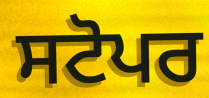
ਸਟੋਪਰ